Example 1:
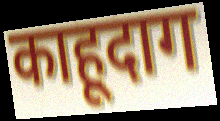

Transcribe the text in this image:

काहूदाग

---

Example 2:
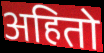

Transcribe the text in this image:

अहितो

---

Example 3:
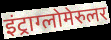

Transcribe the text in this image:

इंट्राग्लोमेरुलर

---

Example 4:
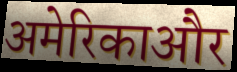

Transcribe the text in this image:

अमेरिकाऔर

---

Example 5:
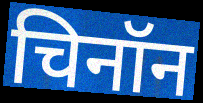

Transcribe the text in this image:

चिनॉन